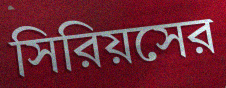
সিরিয়সের